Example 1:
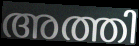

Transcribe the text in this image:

അത്തി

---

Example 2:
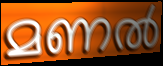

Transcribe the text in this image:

മണൽ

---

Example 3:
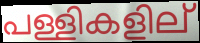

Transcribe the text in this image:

പള്ളികളില്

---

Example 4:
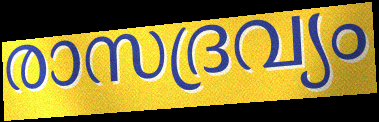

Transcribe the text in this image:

രാസദ്രവ്യം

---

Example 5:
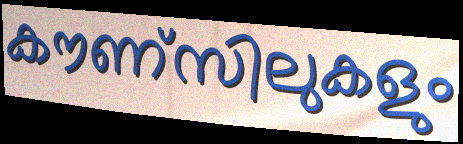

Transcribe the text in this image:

കൗണ്സിലുകളും